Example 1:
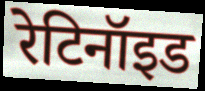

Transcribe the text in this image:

रेटिनॉइड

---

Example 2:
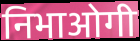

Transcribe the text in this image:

निभाओगी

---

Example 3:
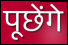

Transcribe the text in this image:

पूछेंगे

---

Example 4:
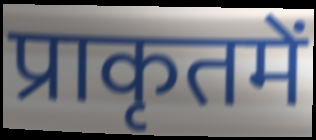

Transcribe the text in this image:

प्राकृतमें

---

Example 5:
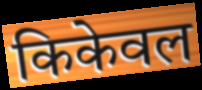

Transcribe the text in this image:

किकेवल